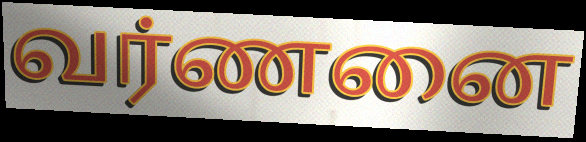
வர்ணனை